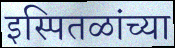
इस्पितळांच्या